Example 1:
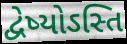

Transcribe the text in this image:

દ્વેષ્યોઽસ્તિ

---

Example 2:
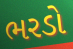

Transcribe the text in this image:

ભરડો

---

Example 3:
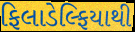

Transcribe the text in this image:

ફિલાડેલ્ફિયાથી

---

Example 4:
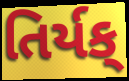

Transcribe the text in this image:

તિર્યક્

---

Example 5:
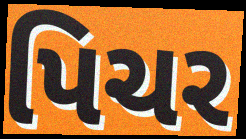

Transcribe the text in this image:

પિચર